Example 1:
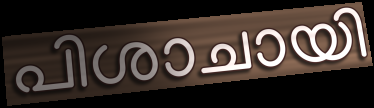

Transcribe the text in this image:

പിശാചായി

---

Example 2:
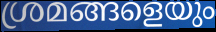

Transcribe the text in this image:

ശ്രമങ്ങളെയും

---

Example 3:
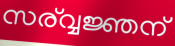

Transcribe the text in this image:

സര്വ്വജ്ഞന്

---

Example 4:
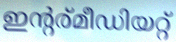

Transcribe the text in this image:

ഇന്റര്മീഡിയറ്റ്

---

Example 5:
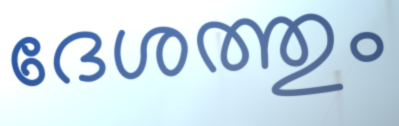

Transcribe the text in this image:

ദേശത്തും